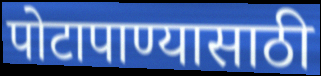
पोटापाण्यासाठी